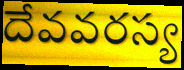
దేవవరస్య